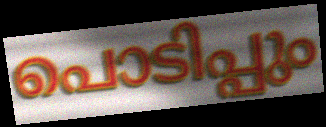
പൊടിപ്പും